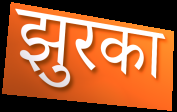
झुरका